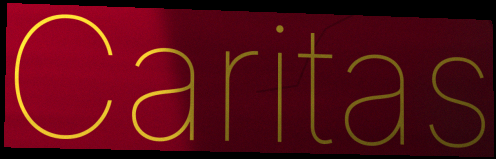
Caritas